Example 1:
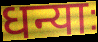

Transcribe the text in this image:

धन्याः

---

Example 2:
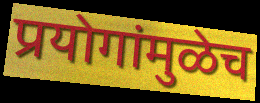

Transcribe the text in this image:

प्रयोगांमुळेच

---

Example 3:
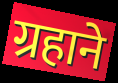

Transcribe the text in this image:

ग्रहाने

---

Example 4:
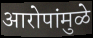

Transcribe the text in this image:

आरोपांमुळे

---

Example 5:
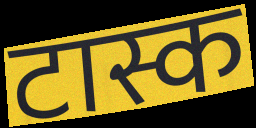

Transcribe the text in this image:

टास्क